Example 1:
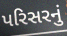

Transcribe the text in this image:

પરિસરનું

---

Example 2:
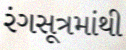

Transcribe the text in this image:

રંગસૂત્રમાંથી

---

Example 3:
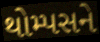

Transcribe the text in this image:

થોમ્પસને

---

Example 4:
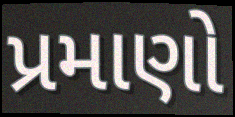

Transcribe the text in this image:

પ્રમાણો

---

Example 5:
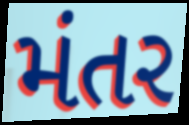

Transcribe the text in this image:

મંતર